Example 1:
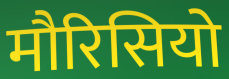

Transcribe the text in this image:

मौरिसियो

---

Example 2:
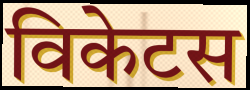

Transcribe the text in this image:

विकेटस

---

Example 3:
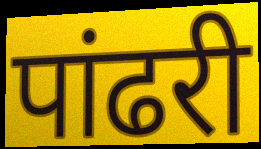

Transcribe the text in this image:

पांढरी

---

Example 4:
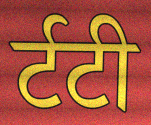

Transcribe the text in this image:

र्टटी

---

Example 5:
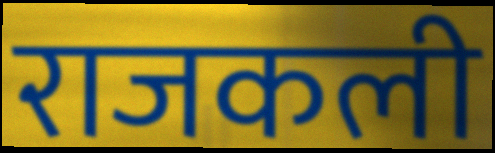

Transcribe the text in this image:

राजकली